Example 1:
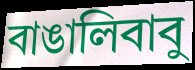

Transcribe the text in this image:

বাঙালিবাবু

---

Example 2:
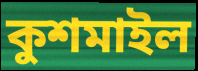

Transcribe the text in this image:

কুশমাইল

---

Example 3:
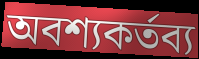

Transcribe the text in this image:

অবশ্যকর্তব্য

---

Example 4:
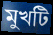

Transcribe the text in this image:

মুখটি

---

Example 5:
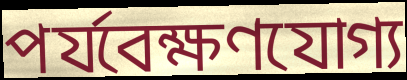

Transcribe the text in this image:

পর্যবেক্ষণযোগ্য